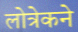
लोत्रेकने